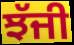
ਝੱਜੀ